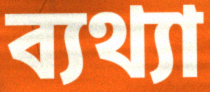
ব্যথ্যা